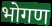
भोगण